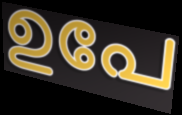
ഉപേ